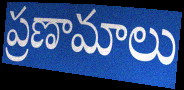
ప్రణామాలు